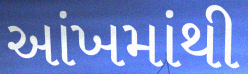
આંખમાંથી